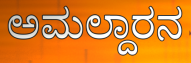
ಅಮಲ್ದಾರನ